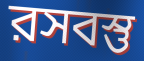
রসবস্তু